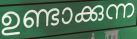
ഉണ്ടാക്കുന്ന